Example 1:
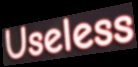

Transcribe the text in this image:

Useless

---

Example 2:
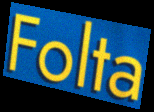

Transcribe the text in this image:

Folta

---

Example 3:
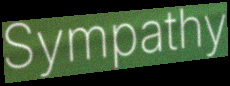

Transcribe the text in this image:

Sympathy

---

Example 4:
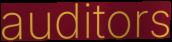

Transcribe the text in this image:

auditors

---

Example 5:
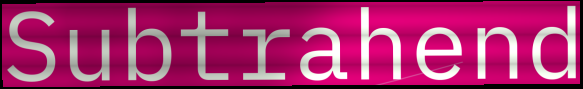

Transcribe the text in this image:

Subtrahend